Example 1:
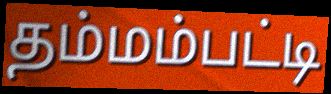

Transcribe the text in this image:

தம்மம்பட்டி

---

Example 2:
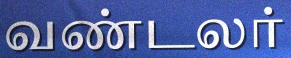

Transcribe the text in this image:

வண்டலர்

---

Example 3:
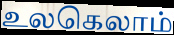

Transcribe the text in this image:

உலகெலாம்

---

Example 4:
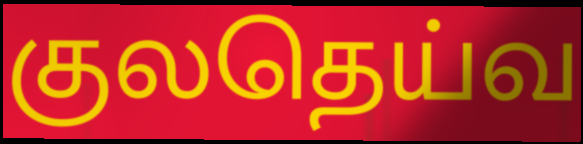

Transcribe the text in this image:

குலதெய்வ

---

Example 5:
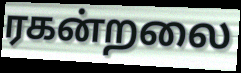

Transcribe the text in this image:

ரகன்றலை